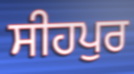
ਸੀਹਪੁਰ